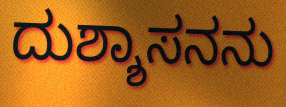
ದುಶ್ಶಾಸನನು